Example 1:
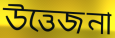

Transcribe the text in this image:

উত্তেজনা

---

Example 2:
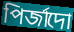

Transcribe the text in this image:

পিৰ্জাদো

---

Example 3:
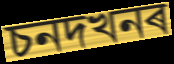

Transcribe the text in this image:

চনদখনৰ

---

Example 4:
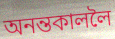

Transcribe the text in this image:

অনন্তকাললৈ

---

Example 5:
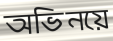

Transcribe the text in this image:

অভিনয়ে